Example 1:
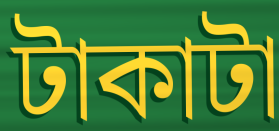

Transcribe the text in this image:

টাকাটা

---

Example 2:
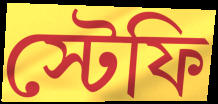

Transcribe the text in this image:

স্টেফি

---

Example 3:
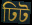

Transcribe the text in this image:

ঢিট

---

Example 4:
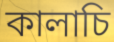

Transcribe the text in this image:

কালাচি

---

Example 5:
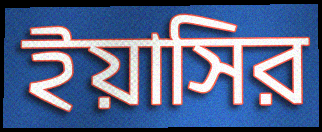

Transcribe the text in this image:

ইয়াসির